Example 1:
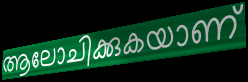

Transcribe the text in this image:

ആലോചിക്കുകയാണ്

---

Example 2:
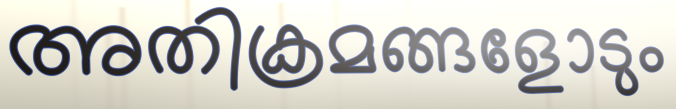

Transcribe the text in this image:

അതിക്രമങ്ങളോടും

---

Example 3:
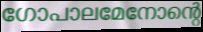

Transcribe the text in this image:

ഗോപാലമേനോന്റെ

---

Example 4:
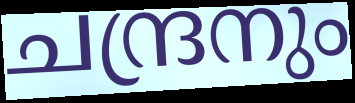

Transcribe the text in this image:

ചന്ദ്രനും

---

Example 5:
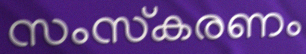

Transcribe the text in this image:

സംസ്‌കരണം